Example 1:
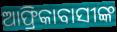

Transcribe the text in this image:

ଆଫ୍ରିକାବାସୀଙ୍କ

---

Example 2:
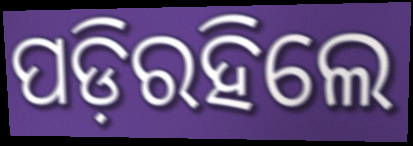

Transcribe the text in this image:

ପଡ଼ିରହିଲେ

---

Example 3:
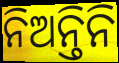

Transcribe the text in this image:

ନିଅନ୍ତିନି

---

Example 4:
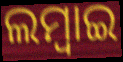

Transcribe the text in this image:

ଲମ୍ବାଇ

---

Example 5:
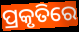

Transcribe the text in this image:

ପ୍ରକୃତିରେ